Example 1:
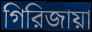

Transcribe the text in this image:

গিরিজায়া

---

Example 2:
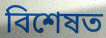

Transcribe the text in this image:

বিশেষত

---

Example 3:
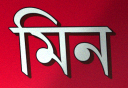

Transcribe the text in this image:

মিন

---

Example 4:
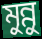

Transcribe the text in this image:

মুন্নু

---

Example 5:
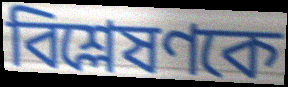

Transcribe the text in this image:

বিশ্লেষণকে